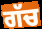
ਗੱਚ